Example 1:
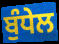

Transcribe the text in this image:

ਬੁੰਧੇਲ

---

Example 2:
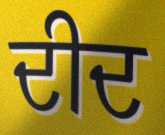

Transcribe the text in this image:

ਦੀਦ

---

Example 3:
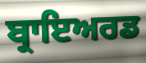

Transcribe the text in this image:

ਬ੍ਰਾਇਅਰਡ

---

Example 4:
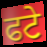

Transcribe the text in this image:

ਫਟੇ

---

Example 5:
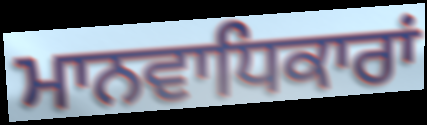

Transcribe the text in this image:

ਮਾਨਵਾਧਿਕਾਰਾਂ